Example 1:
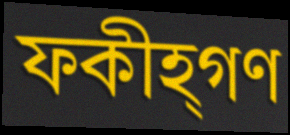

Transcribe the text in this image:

ফকীহ্গণ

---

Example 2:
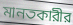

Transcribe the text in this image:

মানতকারীর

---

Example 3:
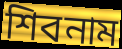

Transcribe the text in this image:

শিবনাম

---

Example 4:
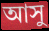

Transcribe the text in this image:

আসু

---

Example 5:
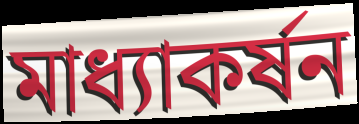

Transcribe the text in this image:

মাধ্যাকর্ষন